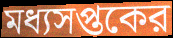
মধ্যসপ্তকের